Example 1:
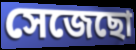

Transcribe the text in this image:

সেজেছো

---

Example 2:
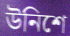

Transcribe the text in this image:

উনিশে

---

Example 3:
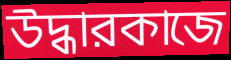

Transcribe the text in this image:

উদ্ধারকাজে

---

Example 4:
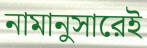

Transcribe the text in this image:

নামানুসারেই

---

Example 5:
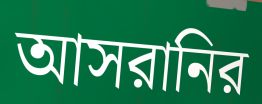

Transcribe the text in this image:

আসরানির